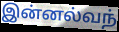
இன்னல்வந்